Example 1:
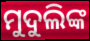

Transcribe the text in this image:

ମୁଦୁଲିଙ୍କ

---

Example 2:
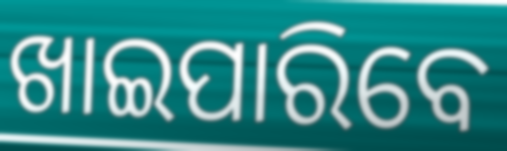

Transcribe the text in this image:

ଖାଇପାରିବେ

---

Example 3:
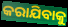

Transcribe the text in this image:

କରାଯିବାକୁ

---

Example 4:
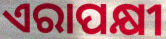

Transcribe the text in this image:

ଏରାପକ୍ଷୀ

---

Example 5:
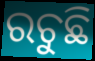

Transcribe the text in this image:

ରଚୁଛି